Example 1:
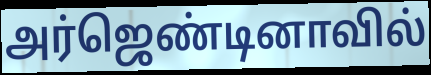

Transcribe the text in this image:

அர்ஜெண்டினாவில்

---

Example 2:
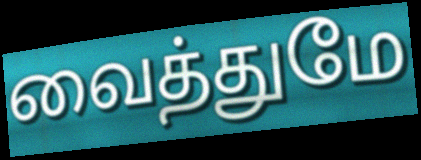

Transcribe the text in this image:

வைத்துமே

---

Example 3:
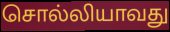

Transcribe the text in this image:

சொல்லியாவது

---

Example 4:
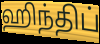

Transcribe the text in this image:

ஹிந்திப்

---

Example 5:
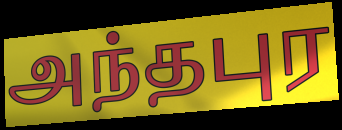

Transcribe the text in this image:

அந்தபுர